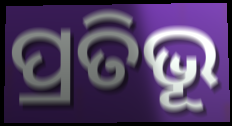
ପ୍ରତିଭୂ